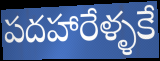
పదహారేళ్ళకే